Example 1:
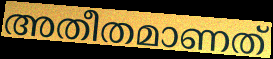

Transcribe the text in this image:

അതീതമാണത്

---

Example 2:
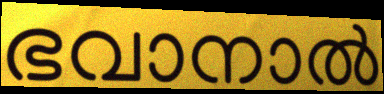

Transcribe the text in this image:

ഭവാനാൽ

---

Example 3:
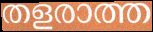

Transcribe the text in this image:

തളരാത്ത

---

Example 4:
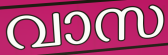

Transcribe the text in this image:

വാസ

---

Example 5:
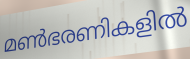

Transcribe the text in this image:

മൺഭരണികളിൽ